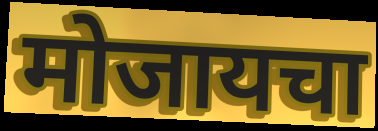
मोजायचा